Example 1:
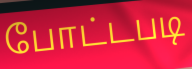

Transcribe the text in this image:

போட்டபடி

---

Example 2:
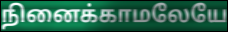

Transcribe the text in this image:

நினைக்காமலேயே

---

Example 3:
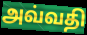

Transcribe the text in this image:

அவ்வதி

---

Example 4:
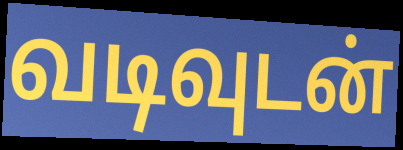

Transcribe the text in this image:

வடிவுடன்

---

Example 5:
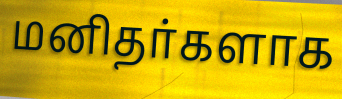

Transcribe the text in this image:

மனிதர்களாக